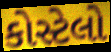
કોસ્ટેલો